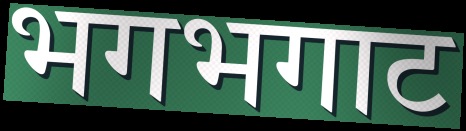
भगभगाट